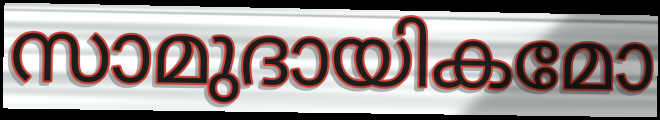
സാമുദായികമോ